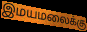
இமயமலைக்கு